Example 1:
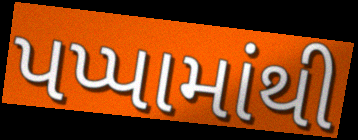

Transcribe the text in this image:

પપ્પામાંથી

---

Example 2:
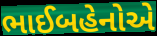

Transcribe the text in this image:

ભાઈબહેનોએ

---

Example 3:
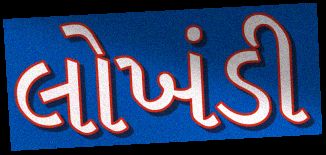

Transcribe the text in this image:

લોખંડી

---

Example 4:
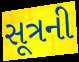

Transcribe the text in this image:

સૂત્રની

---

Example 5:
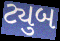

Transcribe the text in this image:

ટ્યુબ